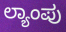
ಲ್ಯಾಂಪು